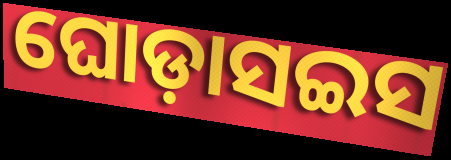
ଘୋଡ଼ାସଇସ